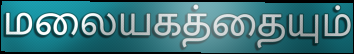
மலையகத்தையும்